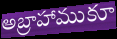
అబ్రాహాముకూ